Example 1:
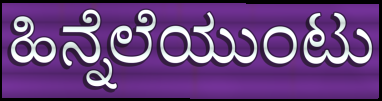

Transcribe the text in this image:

ಹಿನ್ನೆಲೆಯುಂಟು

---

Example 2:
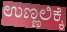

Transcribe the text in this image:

ಉಣ್ಣಲಿಕ್ಕೆ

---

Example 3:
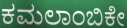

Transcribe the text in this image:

ಕಮಲಾಂಬಿಕೇ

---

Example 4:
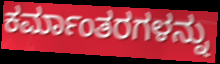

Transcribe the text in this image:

ಕರ್ಮಾಂತರಗಳನ್ನು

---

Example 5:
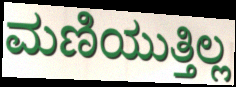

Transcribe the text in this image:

ಮಣಿಯುತ್ತಿಲ್ಲ